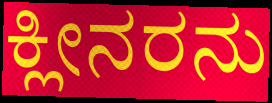
ಕ್ಲೀನರನು